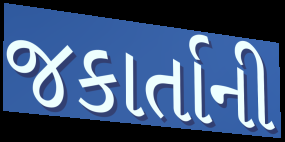
જકાર્તાની